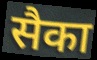
सैका